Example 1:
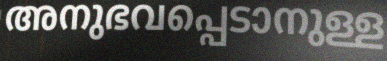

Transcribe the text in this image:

അനുഭവപ്പെടാനുള്ള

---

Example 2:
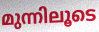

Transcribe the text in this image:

മുന്നിലൂടെ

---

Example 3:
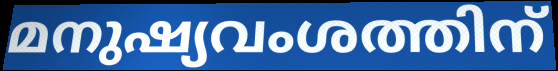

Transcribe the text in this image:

മനുഷ്യവംശത്തിന്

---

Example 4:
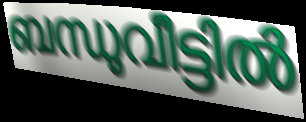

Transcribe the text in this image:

ബന്ധുവീട്ടിൽ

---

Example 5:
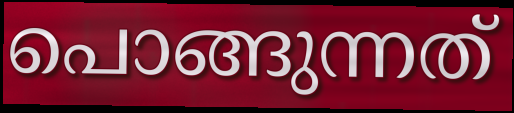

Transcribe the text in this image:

പൊങ്ങുന്നത്